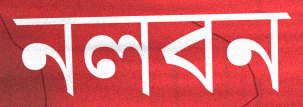
নলবন